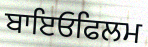
ਬਾਇਓਫਿਲਮ